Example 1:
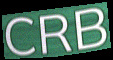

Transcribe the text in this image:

CRB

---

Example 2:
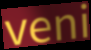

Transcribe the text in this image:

veni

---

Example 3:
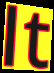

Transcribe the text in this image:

It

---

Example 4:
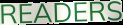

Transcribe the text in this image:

READERS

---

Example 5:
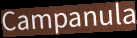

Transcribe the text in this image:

Campanula